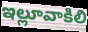
ఇల్లూవాకిలి